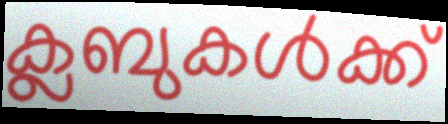
ക്ലബുകൾക്ക്